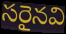
సరైనవి